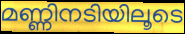
മണ്ണിനടിയിലൂടെ